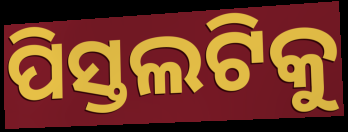
ପିସ୍ତଲଟିକୁ